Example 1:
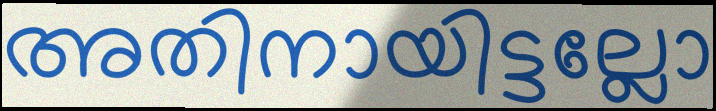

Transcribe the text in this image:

അതിനായിട്ടല്ലോ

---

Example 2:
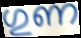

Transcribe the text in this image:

ഗുണ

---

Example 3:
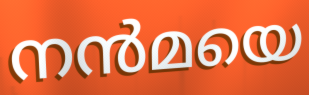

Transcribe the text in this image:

നൻമയെ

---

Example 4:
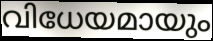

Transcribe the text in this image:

വിധേയമായും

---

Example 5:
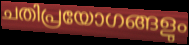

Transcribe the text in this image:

ചതിപ്രയോഗങ്ങളും